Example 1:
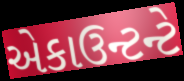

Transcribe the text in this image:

એકાઉન્ટન્ટે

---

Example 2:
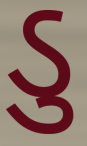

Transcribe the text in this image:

ડુ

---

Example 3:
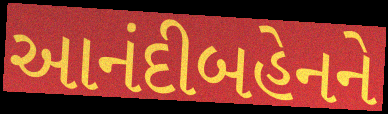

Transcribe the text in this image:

આનંદીબહેનને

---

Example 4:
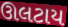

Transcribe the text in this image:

ઊલટાય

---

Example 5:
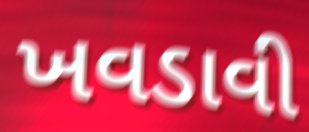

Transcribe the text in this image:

ખવડાવી